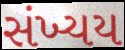
સંખ્યય